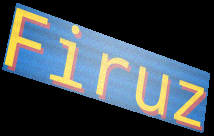
Firuz